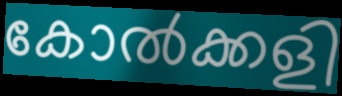
കോൽക്കളി